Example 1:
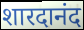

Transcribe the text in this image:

शारदानंद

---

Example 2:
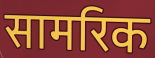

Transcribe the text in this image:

सामरिक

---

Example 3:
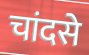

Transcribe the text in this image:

चांदसे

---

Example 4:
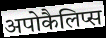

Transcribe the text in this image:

अपोकैलिप्स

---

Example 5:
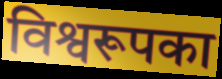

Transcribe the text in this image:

विश्वरूपका